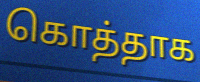
கொத்தாக